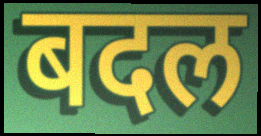
बदल